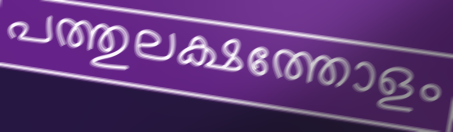
പത്തുലക്ഷത്തോളം